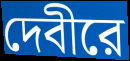
দেবীরে